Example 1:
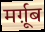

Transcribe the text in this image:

मर्ग़ूब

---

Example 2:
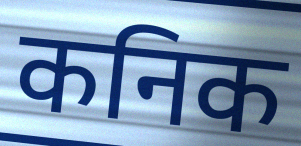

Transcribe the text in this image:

कनिक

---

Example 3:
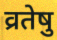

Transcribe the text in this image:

व्रतेषु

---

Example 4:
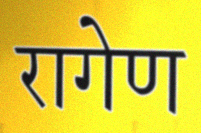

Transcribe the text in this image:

रागेण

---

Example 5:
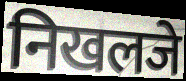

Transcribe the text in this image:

निखलजे